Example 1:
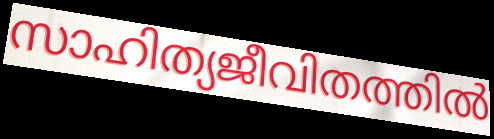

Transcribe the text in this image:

സാഹിത്യജീവിതത്തിൽ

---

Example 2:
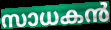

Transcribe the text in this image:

സാധകൻ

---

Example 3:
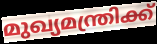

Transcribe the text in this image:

മുഖ്യമന്ത്രിക്ക്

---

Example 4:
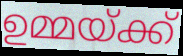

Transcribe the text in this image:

ഉമ്മയ്ക്ക്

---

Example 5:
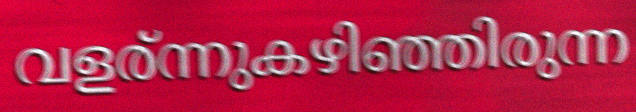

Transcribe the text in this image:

വളര്ന്നുകഴിഞ്ഞിരുന്ന